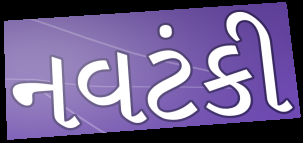
નવટંકી